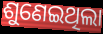
ଶୁଣେଇଥିଲା